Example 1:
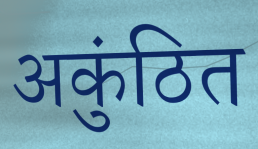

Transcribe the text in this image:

अकुंठित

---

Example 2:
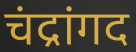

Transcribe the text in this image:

चंद्रांगद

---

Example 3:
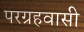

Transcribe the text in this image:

परग्रहवासी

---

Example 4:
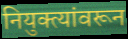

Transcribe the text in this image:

नियुक्त्यांवरून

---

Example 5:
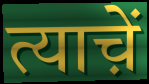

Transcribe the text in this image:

त्याच़ें